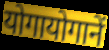
योगायोगानें